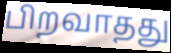
பிறவாதது